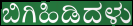
ಬಿಗಿಹಿಡಿದಳು